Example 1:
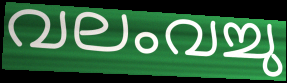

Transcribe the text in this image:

വലംവച്ചു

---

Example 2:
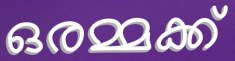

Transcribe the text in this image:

ഒരമ്മക്ക്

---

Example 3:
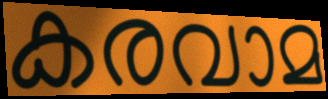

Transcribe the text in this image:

കരവാമ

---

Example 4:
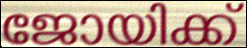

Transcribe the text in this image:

ജോയിക്ക്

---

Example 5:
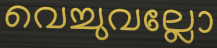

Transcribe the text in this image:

വെച്ചുവല്ലോ